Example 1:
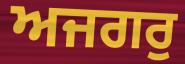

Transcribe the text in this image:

ਅਜਗਰੁ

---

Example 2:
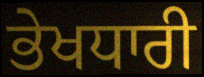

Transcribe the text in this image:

ਭੇਖਧਾਰੀ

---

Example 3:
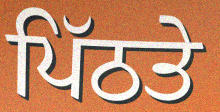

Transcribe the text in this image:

ਪਿੱਠਤੇ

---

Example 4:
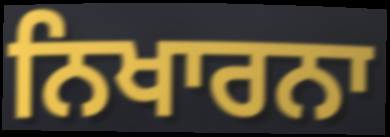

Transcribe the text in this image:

ਨਿਖਾਰਨਾ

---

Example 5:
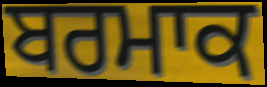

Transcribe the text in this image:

ਬਰਮਾਕ